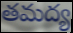
తమద్య